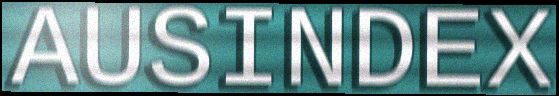
AUSINDEX